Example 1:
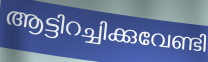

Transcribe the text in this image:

ആട്ടിറച്ചിക്കുവേണ്ടി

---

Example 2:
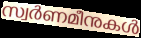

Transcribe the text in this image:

സ്വർണമീനുകൾ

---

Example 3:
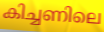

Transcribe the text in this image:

കിച്ചണിലെ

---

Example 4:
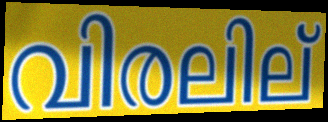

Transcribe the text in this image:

വിരലില്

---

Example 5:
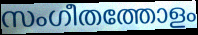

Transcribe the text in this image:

സംഗീതത്തോളം